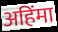
अहिंमा